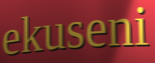
ekuseni